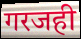
गरजही